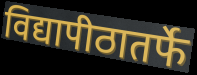
विद्यापीठातर्फे